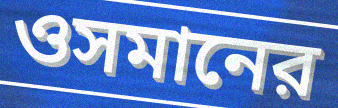
ওসমানের